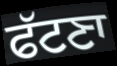
ਫੱਟਣਾ